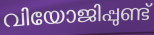
വിയോജിപ്പുണ്ട്